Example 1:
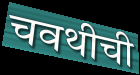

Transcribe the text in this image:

चवथीची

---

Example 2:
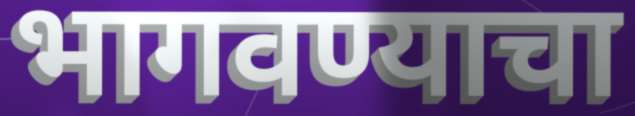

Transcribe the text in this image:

भागवण्याचा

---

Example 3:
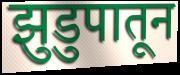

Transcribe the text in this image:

झुडुपातून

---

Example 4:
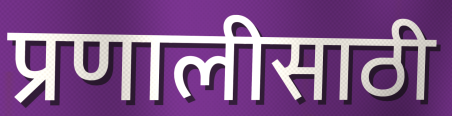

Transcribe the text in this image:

प्रणालीसाठी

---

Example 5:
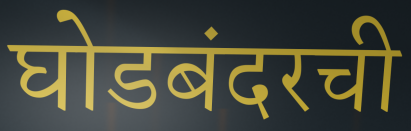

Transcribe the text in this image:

घोडबंदरची